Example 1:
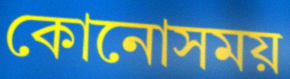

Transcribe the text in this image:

কোনোসময়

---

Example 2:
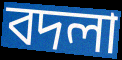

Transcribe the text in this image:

বদলা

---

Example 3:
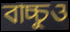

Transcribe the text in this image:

বাচ্চুও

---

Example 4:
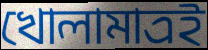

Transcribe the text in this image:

খোলামাত্রই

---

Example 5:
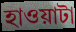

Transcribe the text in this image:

হাওয়াটা